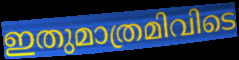
ഇതുമാത്രമിവിടെ